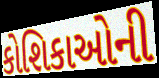
કોશિકાઓની